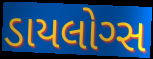
ડાયલોગ્સ